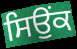
ਸਿਉਂਕ